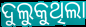
ଦୁଲୁକୁଥିଲା